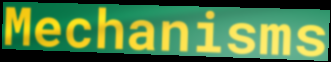
Mechanisms